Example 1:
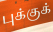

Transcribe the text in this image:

புக்குக்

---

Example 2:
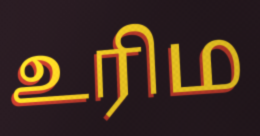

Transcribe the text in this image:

உரிம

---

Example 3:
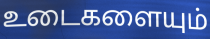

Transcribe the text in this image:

உடைகளையும்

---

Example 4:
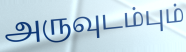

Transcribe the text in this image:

அருவுடம்பும்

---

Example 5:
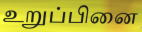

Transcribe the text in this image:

உறுப்பினை